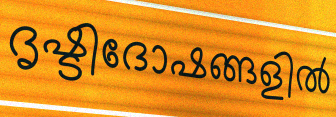
ദൃഷ്ടിദോഷങ്ങളിൽ